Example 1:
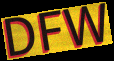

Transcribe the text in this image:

DFW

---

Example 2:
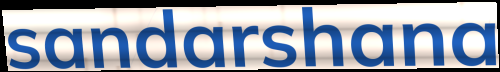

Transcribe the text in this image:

sandarshana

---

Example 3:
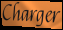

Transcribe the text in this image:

Charger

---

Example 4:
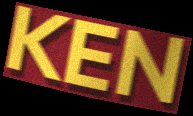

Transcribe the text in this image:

KEN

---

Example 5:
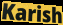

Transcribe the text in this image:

Karish